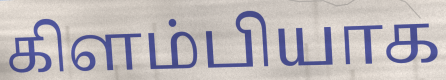
கிளம்பியாக